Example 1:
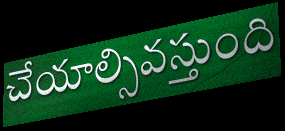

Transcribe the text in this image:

చేయాల్సివస్తుంది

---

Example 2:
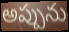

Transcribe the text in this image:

అప్పును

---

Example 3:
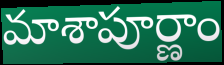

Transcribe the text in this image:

మాశాపూర్ణాం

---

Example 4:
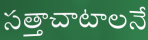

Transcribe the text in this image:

సత్తాచాటాలనే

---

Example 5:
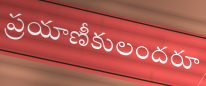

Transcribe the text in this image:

ప్రయాణీకులందరూ